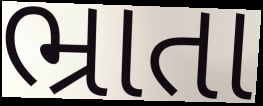
ભ્રાતા